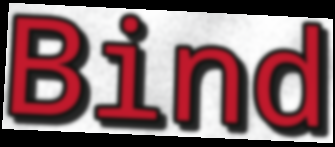
Bind